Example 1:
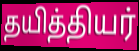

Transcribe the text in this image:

தயித்தியர்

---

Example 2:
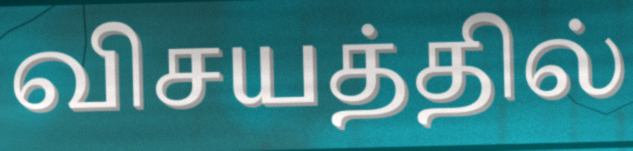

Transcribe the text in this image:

விசயத்தில்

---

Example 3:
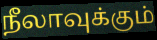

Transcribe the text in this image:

நீலாவுக்கும்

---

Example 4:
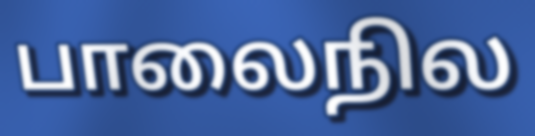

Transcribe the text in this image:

பாலைநில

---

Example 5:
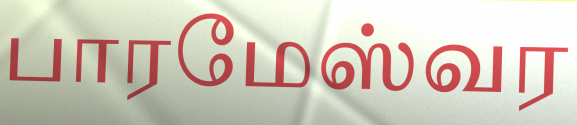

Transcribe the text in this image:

பாரமேஸ்வர